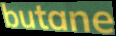
butane